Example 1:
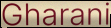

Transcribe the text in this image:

Gharani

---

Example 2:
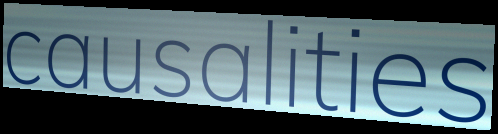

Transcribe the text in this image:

causalities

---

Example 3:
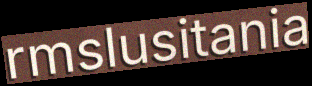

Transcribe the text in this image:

rmslusitania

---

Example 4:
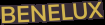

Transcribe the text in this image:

BENELUX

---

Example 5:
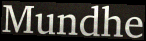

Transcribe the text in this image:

Mundhe